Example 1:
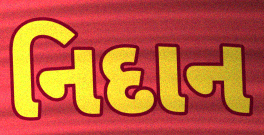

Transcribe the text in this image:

નિદાન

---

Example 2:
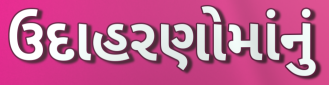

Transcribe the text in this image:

ઉદાહરણોમાંનું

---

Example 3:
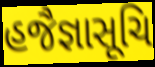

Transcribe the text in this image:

હજૈજ્ઞાસૂચિ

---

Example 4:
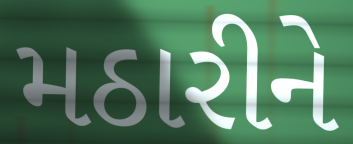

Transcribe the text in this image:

મઠારીને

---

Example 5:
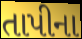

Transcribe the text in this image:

તાપીના